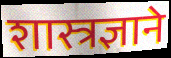
शास्त्रज्ञाने